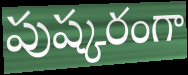
పుష్కరంగా